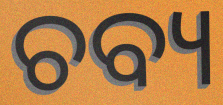
ଚବ୍ୟ